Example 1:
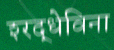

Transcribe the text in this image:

श्रद्धेविना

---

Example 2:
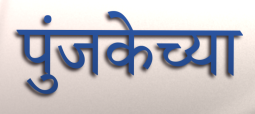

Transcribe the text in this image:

पुंजकेच्या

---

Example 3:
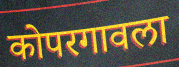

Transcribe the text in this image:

कोपरगावला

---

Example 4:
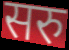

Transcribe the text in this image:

सरु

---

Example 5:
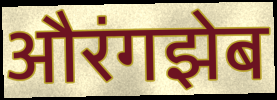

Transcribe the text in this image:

औरंगझेब